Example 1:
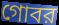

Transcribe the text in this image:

গোবর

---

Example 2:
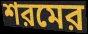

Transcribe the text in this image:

শরমের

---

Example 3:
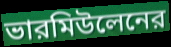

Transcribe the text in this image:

ভারমিউলেনের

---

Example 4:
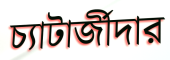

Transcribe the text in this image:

চ্যাটার্জীদার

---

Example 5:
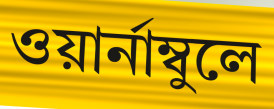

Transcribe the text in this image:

ওয়ার্নাম্বুলে